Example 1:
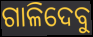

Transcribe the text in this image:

ଗାଳିଦେବୁ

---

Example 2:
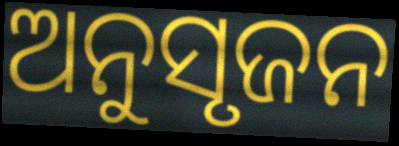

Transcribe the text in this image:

ଅନୁସୃଜନ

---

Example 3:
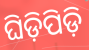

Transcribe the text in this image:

ଘିଡ଼ିପିଡ଼ି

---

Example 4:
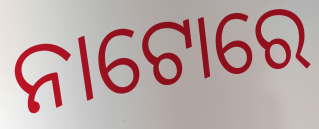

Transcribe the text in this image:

ନାଟୋରେ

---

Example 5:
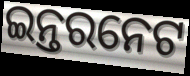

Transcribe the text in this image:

ଇନ୍ତରନେଟ